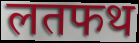
लतफथ